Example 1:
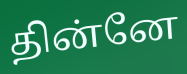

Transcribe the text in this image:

தின்னே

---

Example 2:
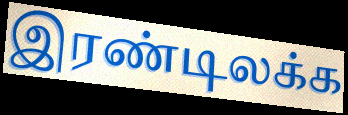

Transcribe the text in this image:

இரண்டிலக்க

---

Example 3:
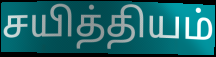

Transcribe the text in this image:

சயித்தியம்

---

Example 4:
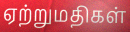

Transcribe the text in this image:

ஏற்றுமதிகள்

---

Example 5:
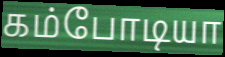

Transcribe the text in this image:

கம்போடியா